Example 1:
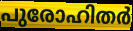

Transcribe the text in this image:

പുരോഹിതർ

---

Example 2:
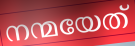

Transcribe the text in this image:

നന്മയേത്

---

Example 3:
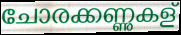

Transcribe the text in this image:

ചോരക്കണ്ണുകള്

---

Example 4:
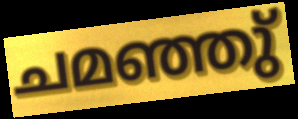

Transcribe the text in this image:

ചമഞ്ഞു്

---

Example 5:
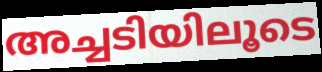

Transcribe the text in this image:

അച്ചടിയിലൂടെ